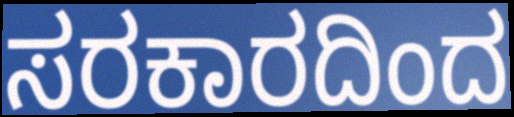
ಸರಕಾರದಿಂದ